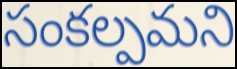
సంకల్పమని